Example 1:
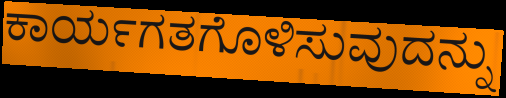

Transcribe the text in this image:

ಕಾರ್ಯಗತಗೊಳಿಸುವುದನ್ನು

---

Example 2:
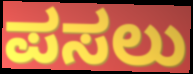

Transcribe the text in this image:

ಪಸಲು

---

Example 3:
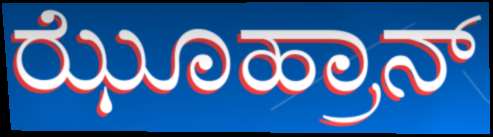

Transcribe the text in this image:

ಝೊಹ್ರಾನ್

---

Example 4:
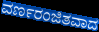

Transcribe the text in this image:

ವರ್ಣರಂಜಿತವಾದ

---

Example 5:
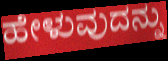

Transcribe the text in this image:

ಹೇಳುವುದನ್ನು